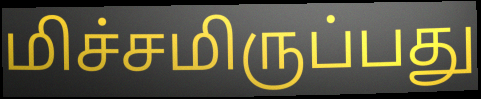
மிச்சமிருப்பது